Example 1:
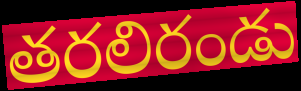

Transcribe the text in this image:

తరలిరండు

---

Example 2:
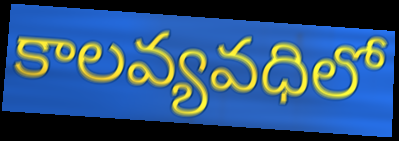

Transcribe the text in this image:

కాలవ్యవధిలో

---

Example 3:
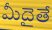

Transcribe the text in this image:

మీదైతే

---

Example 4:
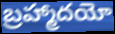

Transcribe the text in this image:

బ్రహ్మాదయో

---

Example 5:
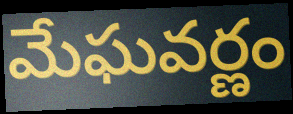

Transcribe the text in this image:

మేఘవర్ణం